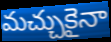
మచ్చుకైనా